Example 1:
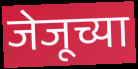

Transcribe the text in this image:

जेजूच्या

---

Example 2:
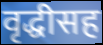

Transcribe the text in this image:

वृद्धीसह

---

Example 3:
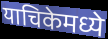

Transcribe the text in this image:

याचिकेमध्ये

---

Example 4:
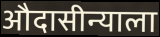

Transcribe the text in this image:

औदासीन्याला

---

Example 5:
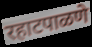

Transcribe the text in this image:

रहाटपाळणे